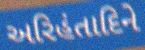
અરિહંતાદિને